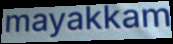
mayakkam